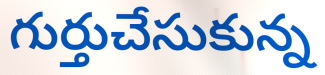
గుర్తుచేసుకున్న